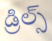
డ్రిల్స్